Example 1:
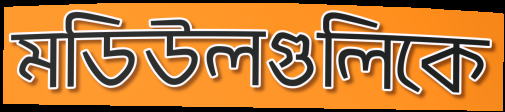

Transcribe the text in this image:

মডিউলগুলিকে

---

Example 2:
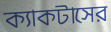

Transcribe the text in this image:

ক্যাকটাসের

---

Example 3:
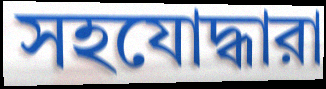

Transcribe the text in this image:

সহযোদ্ধারা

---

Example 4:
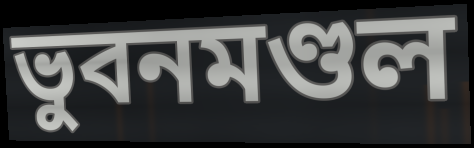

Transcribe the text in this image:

ভুবনমণ্ডল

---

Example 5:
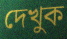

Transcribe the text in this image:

দেখুক